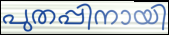
പുതപ്പിനായി